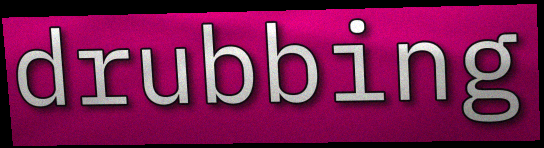
drubbing